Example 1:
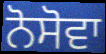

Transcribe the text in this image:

ਨੋਸੋਵਾ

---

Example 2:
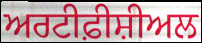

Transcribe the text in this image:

ਅਰਟੀਫ਼ੀਸ਼ੀਅਲ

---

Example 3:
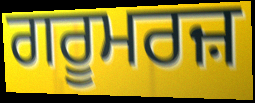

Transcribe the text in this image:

ਗਰੂਮਰਜ਼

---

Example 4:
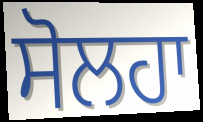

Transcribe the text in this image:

ਸੋਲਹਾ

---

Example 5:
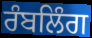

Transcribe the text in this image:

ਰੰਬਲਿੰਗ